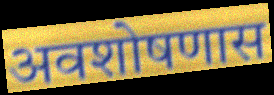
अवशोषणास